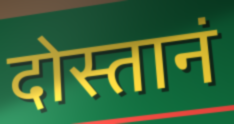
दोस्तानं